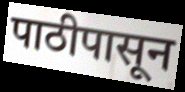
पाठीपासून